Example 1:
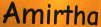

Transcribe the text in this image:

Amirtha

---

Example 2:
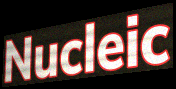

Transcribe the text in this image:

Nucleic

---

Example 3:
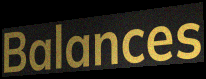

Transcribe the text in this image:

Balances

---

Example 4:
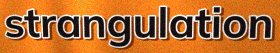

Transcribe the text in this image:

strangulation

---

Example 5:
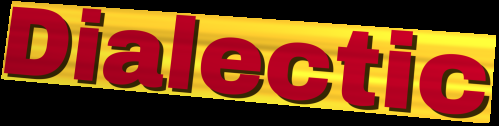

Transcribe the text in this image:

Dialectic